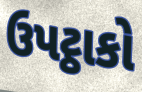
ઉપટ્ઠાકો